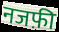
नजफ़ी